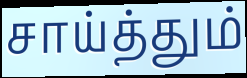
சாய்த்தும்